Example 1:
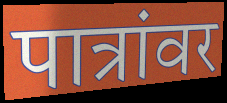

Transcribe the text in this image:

पात्रांवर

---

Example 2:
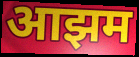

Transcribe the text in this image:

आझम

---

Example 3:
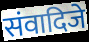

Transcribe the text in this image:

संवादिजे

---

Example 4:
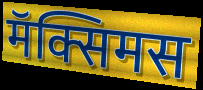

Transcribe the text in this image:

मॅक्सिमस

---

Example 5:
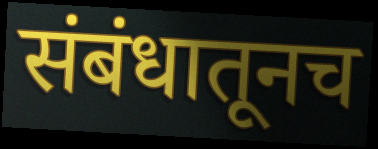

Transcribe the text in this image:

संबंधातूनच